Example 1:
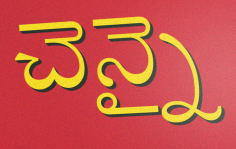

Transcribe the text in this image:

చెన్నై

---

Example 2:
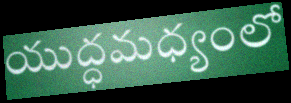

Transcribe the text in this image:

యుద్ధమధ్యంలో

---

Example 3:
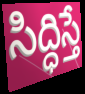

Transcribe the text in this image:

సిద్ధిస్తే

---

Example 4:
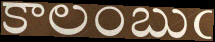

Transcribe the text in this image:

కాలంబుఁ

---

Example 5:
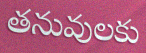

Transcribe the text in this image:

తనువులకు